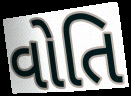
વોતિ